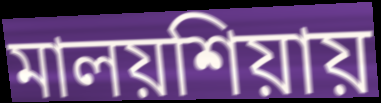
মালয়শিয়ায়